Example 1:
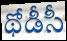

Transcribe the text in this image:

థోడీసీ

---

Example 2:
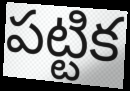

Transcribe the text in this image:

పట్టిక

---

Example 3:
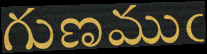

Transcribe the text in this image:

గుణముఁ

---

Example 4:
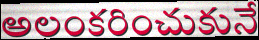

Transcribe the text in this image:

అలంకరించుకునే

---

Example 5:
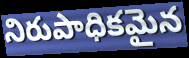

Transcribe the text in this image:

నిరుపాధికమైన